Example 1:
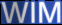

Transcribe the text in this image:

WIM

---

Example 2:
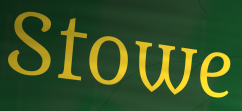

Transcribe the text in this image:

Stowe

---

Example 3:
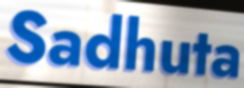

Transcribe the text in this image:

Sadhuta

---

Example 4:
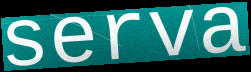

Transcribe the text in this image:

serva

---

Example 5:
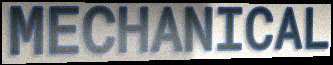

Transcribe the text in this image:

MECHANICAL